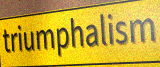
triumphalism